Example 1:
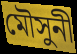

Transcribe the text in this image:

মৌসুনী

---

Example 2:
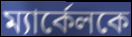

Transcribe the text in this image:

ম্যার্কেলকে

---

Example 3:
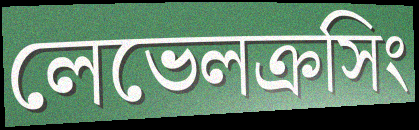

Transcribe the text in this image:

লেভেলক্রসিং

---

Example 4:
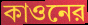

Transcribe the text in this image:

কাওনের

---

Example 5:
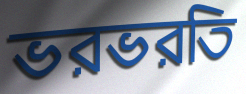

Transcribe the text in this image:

ভরভরতি